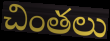
చింతలు